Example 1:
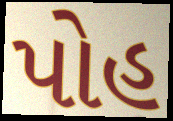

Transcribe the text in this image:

પોહ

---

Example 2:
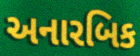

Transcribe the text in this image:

અનારબિક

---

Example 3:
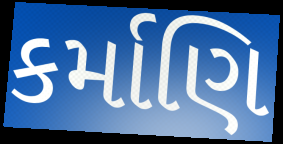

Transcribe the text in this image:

કર્માણિ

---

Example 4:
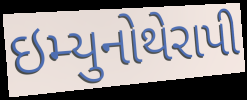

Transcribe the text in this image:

ઇમ્યુનોથેરાપી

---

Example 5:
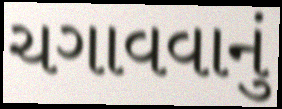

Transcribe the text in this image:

ચગાવવાનું